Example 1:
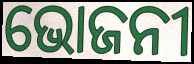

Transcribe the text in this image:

ଭୋଜନୀ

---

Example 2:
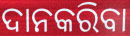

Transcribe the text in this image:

ଦାନକରିବା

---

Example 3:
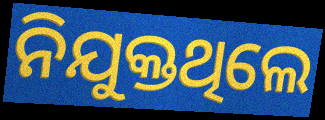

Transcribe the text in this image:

ନିଯୁକ୍ତଥିଲେ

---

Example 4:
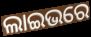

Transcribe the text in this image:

ଲାଇଭରେ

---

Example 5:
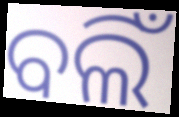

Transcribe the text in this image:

ବଲିଁ